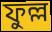
ফুল্ল